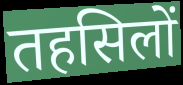
तहसिलों